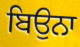
ਬਿਉਨਾ